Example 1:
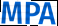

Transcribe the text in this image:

MPA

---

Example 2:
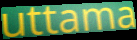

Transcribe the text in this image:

uttama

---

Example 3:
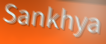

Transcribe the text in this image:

Sankhya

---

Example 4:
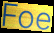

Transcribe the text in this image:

Foe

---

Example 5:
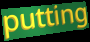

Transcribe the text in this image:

putting